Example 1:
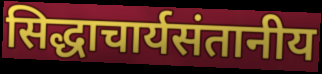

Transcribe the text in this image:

सिद्धाचार्यसंतानीय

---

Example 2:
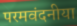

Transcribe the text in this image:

परमवंदनीया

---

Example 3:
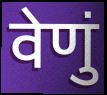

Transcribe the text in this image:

वेणुं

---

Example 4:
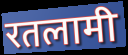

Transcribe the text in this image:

रतलामी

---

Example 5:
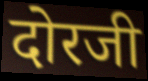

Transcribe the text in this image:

दोरजी